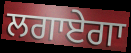
ਲਗਾਏਗਾ